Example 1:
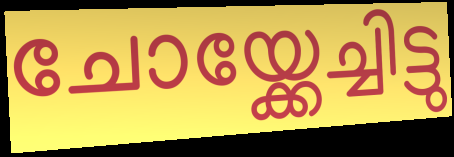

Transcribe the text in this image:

ചോയ്ക്കേച്ചിട്ടു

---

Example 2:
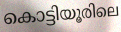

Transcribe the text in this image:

കൊട്ടിയൂരിലെ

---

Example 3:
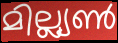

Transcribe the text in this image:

മില്ല്യൺ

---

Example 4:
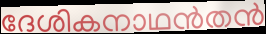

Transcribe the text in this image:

ദേശികനാഥൻതൻ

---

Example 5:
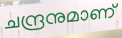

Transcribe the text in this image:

ചന്ദ്രനുമാണ്